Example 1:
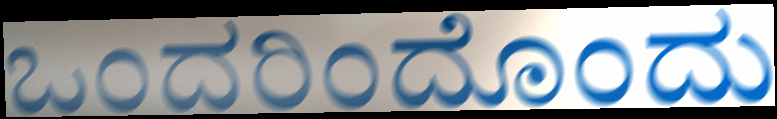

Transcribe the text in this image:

ಒಂದರಿಂದೊಂದು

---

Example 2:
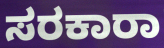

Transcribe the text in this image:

ಸರಕಾರಾ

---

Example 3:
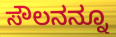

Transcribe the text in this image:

ಸೌಲನನ್ನೂ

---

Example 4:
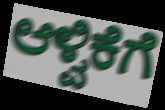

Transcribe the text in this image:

ಆಳ್ವಿಕೆಗೆ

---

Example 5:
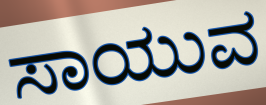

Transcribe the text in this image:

ಸಾಯುವ